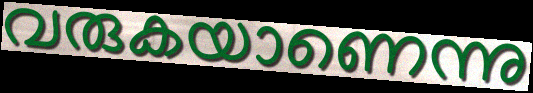
വരുകയാണെന്നു